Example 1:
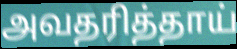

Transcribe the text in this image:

அவதரித்தாய்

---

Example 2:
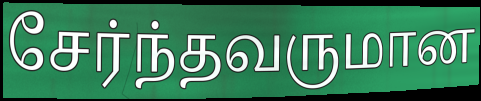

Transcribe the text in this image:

சேர்ந்தவருமான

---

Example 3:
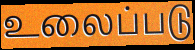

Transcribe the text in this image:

உலைப்படு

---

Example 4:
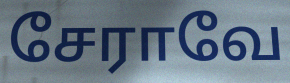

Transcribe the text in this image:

சேராவே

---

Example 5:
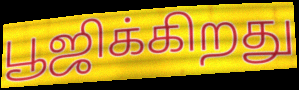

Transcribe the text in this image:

பூஜிக்கிறது